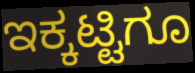
ಇಕ್ಕಟ್ಟಿಗೂ